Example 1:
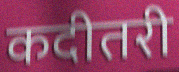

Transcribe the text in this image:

कदीतरी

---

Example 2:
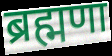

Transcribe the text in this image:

ब्रह्मणा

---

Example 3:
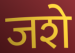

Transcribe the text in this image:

जशे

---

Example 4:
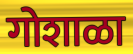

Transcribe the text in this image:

गोशाळा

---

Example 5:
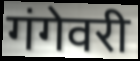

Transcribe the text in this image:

गंगेवरी